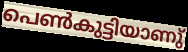
പെൺകുട്ടിയാണു്